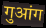
गुआंग